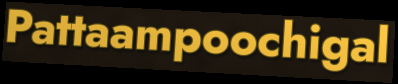
Pattaampoochigal